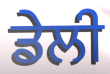
ਡੇਲੀ